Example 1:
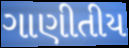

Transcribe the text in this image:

ગાણીતીય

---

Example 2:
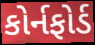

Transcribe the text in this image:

કોર્નફોર્ડ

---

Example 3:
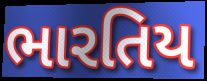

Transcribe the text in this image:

ભારતિય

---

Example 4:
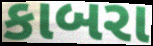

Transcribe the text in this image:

કાબરા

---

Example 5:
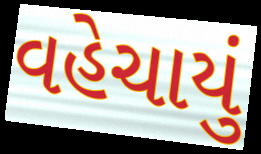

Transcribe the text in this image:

વહેચાયું